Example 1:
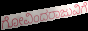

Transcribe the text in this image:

ಗೋವಿಂದರಾಜುವಿಗೆ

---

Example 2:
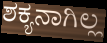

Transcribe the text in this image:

ಶಕ್ಯನಾಗಿಲ್ಲ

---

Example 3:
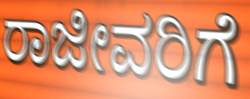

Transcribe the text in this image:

ರಾಜೀವರಿಗೆ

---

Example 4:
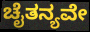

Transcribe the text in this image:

ಚೈತನ್ಯವೇ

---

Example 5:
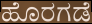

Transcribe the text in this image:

ಹೊರಗಡೆ